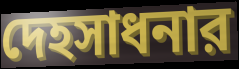
দেহসাধনার